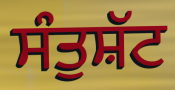
ਸੰਤੁਸ਼ੱਟ